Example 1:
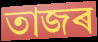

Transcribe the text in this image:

তাজৰ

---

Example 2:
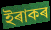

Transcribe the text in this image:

ইৰাকৰ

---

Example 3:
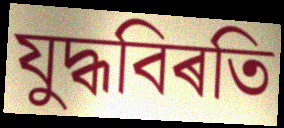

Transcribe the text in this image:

যুদ্ধবিৰতি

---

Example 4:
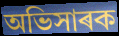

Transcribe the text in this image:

অভিসাৰক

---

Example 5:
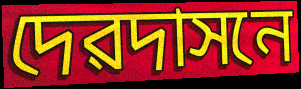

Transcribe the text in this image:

দেৱদাসনে